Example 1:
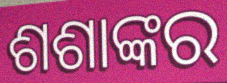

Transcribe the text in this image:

ଶଶାଙ୍କର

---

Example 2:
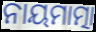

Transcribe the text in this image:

ନାୟମାତ୍ମା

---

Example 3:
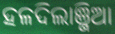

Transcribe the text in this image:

ହଳଦିଲାଞ୍ଜିଆ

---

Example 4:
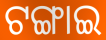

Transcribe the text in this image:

ଟଙ୍ଗାଇ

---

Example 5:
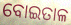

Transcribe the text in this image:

ବୋଇତାଳ